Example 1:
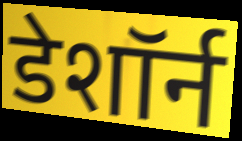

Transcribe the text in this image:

डेशॉर्न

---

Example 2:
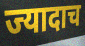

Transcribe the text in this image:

ज्यादाच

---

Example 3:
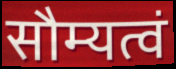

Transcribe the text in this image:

सौम्यत्वं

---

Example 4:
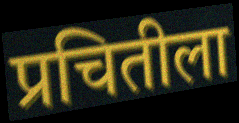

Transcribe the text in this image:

प्रचितीला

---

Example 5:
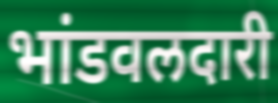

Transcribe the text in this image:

भांडवलदारी